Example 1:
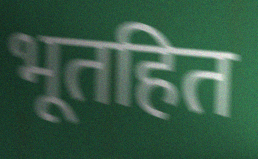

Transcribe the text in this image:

भूतहित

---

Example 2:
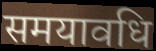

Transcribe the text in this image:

समयावधि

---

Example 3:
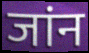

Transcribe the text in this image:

जांन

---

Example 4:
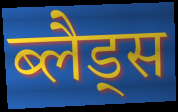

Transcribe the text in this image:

ब्लैड्स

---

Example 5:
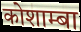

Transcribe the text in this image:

कोशाम्बा